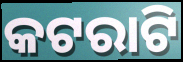
କଟରାଟି